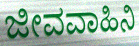
ಜೀವವಾಹಿನಿ